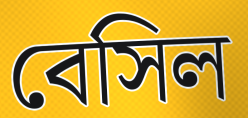
বেসিল